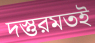
দস্তুরমতই